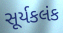
સૂર્યકલંક